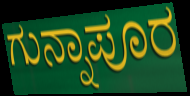
ಗುನ್ನಾಪೂರ